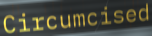
Circumcised